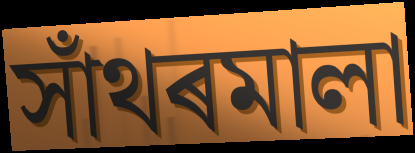
সাঁথৰমালা